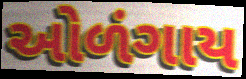
ઓળંગાય